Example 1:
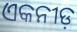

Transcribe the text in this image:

ଏକନୀଡ଼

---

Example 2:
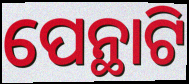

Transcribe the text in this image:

ପେନ୍ଥାଟି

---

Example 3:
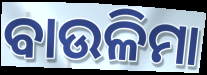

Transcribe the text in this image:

ବାଉଳିମା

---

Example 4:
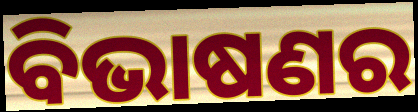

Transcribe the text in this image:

ବିଭାଷଣର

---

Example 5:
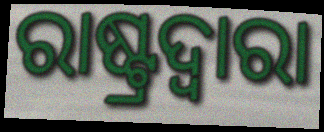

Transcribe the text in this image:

ରାଷ୍ଟ୍ରଦ୍ୱାରା